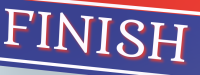
FINISH